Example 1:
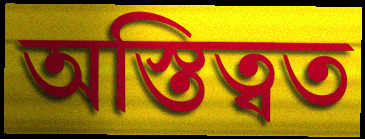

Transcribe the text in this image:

অস্তিত্বত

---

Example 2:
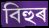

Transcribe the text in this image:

বিহুৰ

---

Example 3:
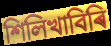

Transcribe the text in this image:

শিলিখাবিৰি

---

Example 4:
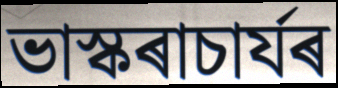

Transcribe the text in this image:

ভাস্কৰাচাৰ্যৰ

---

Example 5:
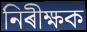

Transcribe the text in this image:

নিৰীক্ষক